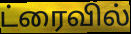
ட்ரைவில்